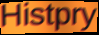
Histpry